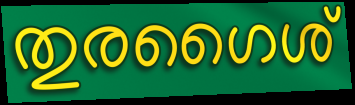
തുരഗൈശ്